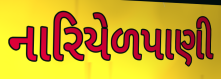
નારિયેળપાણી